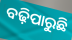
ବଢ଼ିପାରୁଛି